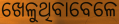
ଖେଳୁଥିବାବେଳେ